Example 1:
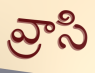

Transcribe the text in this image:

వ్రాసి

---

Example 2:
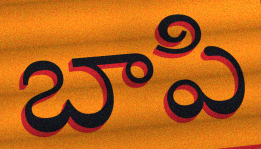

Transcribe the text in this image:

బాపి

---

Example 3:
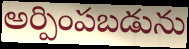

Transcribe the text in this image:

అర్పింపబడును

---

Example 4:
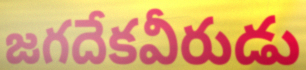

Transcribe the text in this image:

జగదేకవీరుడు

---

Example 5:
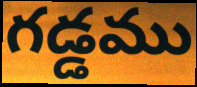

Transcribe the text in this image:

గడ్డము